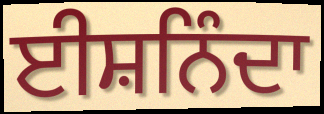
ਈਸ਼ਨਿੰਦਾ